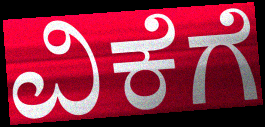
ವಿಕೆಗೆ